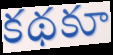
కథకూ